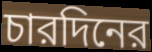
চারদিনের